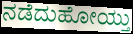
ನಡೆದುಹೋಯ್ತು